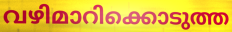
വഴിമാറിക്കൊടുത്ത